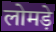
लोमड़े